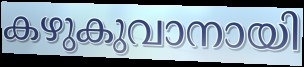
കഴുകുവാനായി